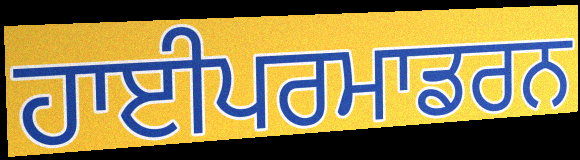
ਹਾਈਪਰਮਾਡਰਨ